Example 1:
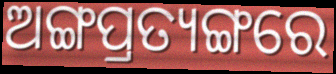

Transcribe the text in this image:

ଅଙ୍ଗପ୍ରତ୍ୟଙ୍ଗରେ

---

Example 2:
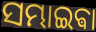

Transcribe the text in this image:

ସମ୍ଭାଇଵା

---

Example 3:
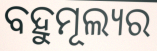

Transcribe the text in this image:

ବହୁମୂଲ୍ୟର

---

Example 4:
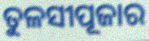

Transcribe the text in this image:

ତୁଳସୀପୂଜାର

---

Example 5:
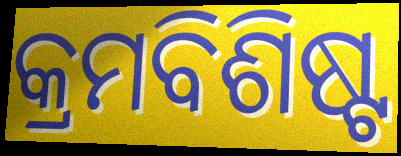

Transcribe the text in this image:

କ୍ରମବିଶିଷ୍ଟ